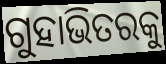
ଗୁହାଭିତରକୁ